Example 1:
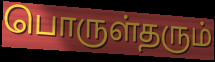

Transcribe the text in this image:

பொருள்தரும்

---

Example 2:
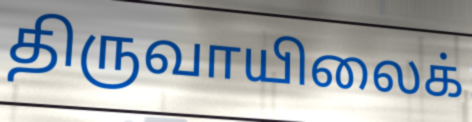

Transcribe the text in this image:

திருவாயிலைக்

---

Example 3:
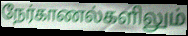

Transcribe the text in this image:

நேர்காணல்களிலும்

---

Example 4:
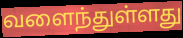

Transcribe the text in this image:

வளைந்துள்ளது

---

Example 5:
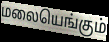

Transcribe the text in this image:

மலையெங்கும்